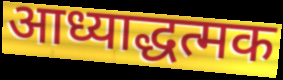
आध्याद्धत्मक